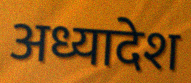
अध्यादेश